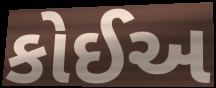
કોઈઅ